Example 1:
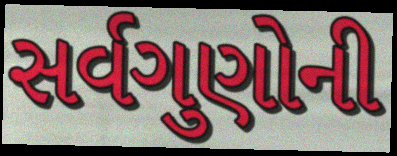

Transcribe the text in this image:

સર્વગુણોની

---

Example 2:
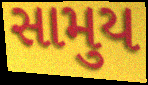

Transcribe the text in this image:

સામુય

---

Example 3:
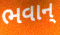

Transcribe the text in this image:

ભવાન્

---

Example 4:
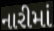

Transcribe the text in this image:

નારીમાં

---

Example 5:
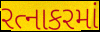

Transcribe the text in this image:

રત્નાકરમાં